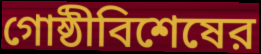
গোষ্ঠীবিশেষের